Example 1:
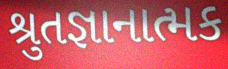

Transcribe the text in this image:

શ્રુતજ્ઞાનાત્મક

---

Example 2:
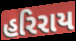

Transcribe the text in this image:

હરિરાય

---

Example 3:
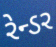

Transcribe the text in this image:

રેન્ડર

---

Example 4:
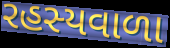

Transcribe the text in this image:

રહસ્યવાળા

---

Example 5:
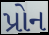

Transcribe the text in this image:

પ્રોન